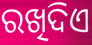
ରଖିଦିଏ